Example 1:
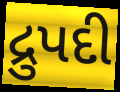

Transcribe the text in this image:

દ્રુપદી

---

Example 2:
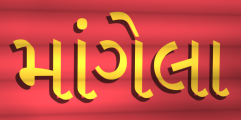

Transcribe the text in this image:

માંગેલા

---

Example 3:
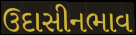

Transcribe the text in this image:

ઉદાસીનભાવ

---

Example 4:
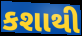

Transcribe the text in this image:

કશાથી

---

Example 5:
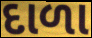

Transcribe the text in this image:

દાળા